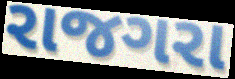
રાજગરા